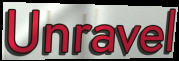
Unravel